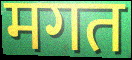
मगत